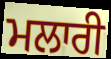
ਮਲਾਰੀ